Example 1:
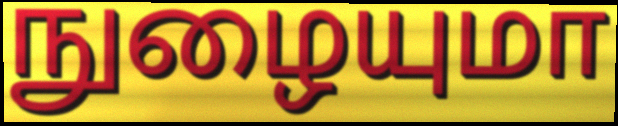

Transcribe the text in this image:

நுழையுமா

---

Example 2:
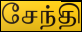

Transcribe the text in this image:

சேந்தி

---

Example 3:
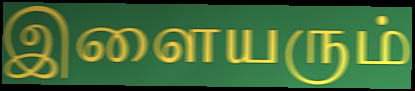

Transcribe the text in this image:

இளையரும்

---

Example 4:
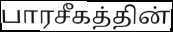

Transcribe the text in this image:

பாரசீகத்தின்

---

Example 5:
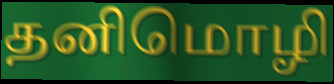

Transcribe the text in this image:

தனிமொழி